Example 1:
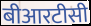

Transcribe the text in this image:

बीआरटीसी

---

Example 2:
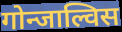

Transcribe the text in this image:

गोन्जाल्विस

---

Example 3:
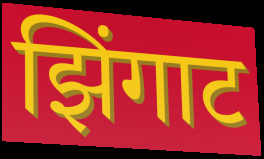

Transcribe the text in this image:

झिंगाट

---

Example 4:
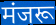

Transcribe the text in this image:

मंजरू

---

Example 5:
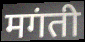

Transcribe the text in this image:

मगंती